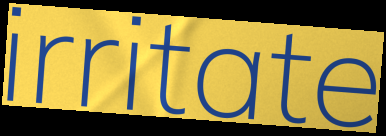
irritate